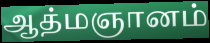
ஆத்மஞானம்